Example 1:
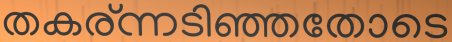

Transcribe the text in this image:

തകര്ന്നടിഞ്ഞതോടെ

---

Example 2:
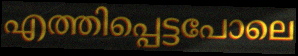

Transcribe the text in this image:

എത്തിപ്പെട്ടപോലെ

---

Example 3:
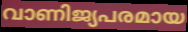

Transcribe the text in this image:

വാണിജ്യപരമായ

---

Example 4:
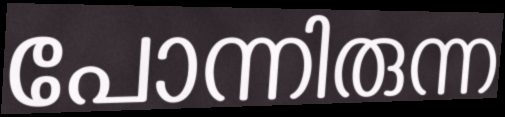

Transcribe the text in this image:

പോന്നിരുന്ന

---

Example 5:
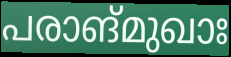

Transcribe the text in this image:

പരാങ്മുഖാഃ